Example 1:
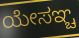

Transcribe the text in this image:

ಯೇಸಞ್ಚ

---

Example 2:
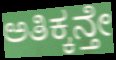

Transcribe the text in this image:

ಅತಿಕ್ಕನ್ತೇ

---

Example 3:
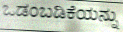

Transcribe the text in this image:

ಒಡಂಬಡಿಕೆಯನ್ನು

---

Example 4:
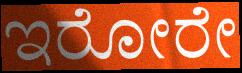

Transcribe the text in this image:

ಇರೋರೇ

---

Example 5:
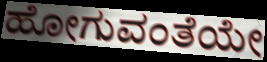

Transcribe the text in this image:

ಹೋಗುವಂತೆಯೇ